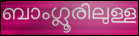
ബാംഗ്ലൂരിലുള്ള